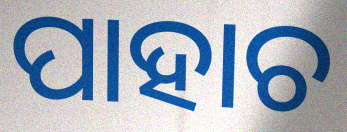
ପାହାଚ